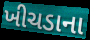
ખીચડાના